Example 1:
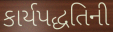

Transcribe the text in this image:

કાર્યપદ્ધતિની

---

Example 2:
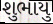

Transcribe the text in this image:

શુભાયુ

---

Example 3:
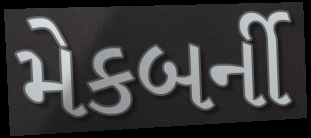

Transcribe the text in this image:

મેકબર્ની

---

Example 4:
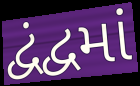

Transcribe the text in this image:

દ્વંદ્વમાં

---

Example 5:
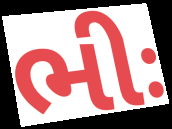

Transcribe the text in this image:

ભીઃ